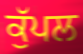
ਕੁੱਪਲ